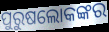
ପୁରୁଷଲୋକଙ୍କର